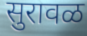
सुरावळ